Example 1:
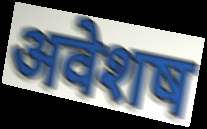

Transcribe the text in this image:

अवेशष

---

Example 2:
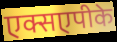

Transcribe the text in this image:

एक्सएपीके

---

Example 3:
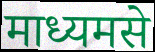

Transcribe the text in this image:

माध्यमसे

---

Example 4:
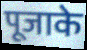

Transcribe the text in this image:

पूजाके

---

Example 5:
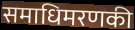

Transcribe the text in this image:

समाधिमरणकी